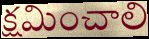
క్షమించాలి